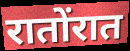
रातोंरात